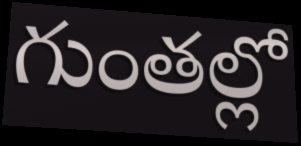
గుంతల్లో